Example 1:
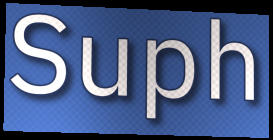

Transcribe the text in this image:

Suph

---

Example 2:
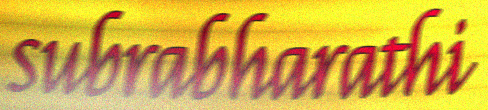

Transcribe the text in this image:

subrabharathi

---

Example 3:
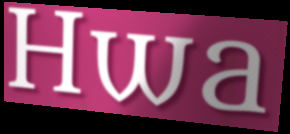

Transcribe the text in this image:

Hwa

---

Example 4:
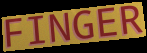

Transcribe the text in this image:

FINGER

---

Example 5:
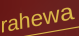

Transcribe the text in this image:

rahewa